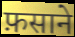
फ़साने